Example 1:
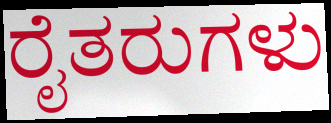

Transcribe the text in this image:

ರೈತರುಗಳು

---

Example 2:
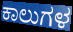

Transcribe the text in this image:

ಕಾಲುಗಳ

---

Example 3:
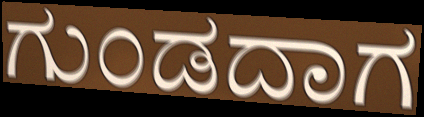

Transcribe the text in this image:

ಗುಂಡದಾಗ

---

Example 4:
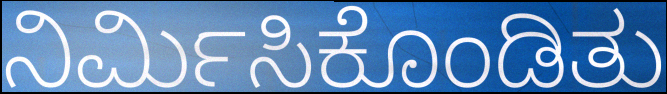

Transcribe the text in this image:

ನಿರ್ಮಿಸಿಕೊಂಡಿತು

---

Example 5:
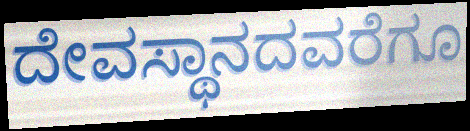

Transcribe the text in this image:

ದೇವಸ್ಥಾನದವರೆಗೂ